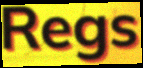
Regs